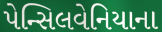
પેન્સિલવેનિયાના